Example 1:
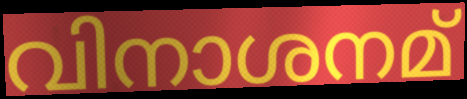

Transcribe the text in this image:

വിനാശനമ്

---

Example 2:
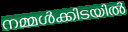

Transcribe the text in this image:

നമ്മൾക്കിടയിൽ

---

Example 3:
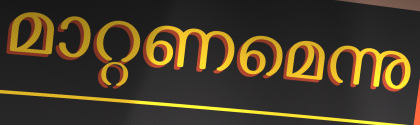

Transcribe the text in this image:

മാറ്റണമെന്നു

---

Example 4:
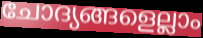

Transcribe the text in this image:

ചോദ്യങ്ങളെല്ലാം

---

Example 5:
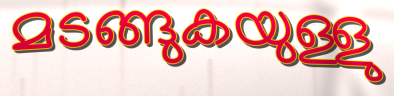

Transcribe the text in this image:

മടങ്ങുകയുള്ളു